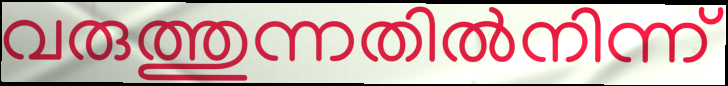
വരുത്തുന്നതിൽനിന്ന്